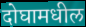
दोघामधील